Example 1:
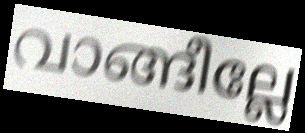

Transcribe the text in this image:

വാങ്ങീല്ലേ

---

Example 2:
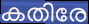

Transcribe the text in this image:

കതിരേ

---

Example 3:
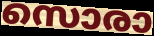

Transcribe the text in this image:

സൊരാ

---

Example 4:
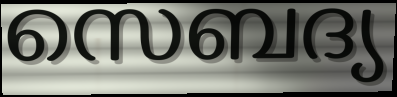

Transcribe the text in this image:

സെബദ്യ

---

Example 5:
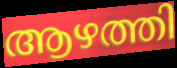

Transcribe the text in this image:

ആഴത്തി